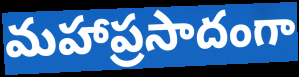
మహాప్రసాదంగా